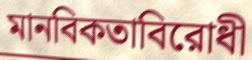
মানবিকতাবিরোধী